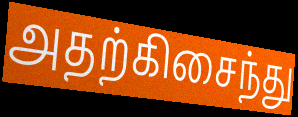
அதற்கிசைந்து